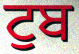
ਟੁਬ